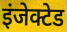
इंजेक्टेड